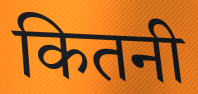
कितनी